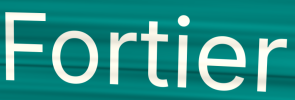
Fortier